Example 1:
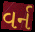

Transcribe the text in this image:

વર્ન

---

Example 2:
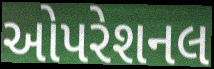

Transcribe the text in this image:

ઓપરેશનલ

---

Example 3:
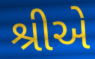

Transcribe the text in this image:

શ્રીએ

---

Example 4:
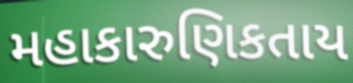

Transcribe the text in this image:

મહાકારુણિકતાય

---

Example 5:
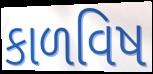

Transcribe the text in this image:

કાળવિષ